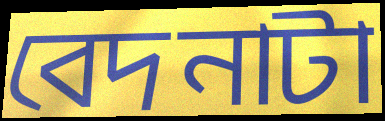
বেদনাটা